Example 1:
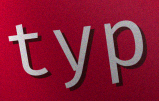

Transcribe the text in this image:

typ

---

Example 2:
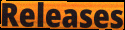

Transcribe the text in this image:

Releases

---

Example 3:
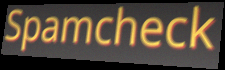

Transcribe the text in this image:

Spamcheck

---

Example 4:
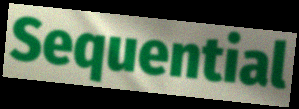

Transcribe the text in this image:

Sequential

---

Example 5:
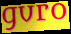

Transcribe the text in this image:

guro